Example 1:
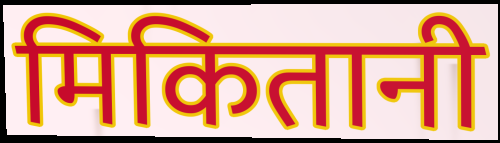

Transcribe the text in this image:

मिकितानी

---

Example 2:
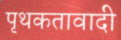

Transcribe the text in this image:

पृथकतावादी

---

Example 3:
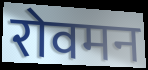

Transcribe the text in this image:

रोवमन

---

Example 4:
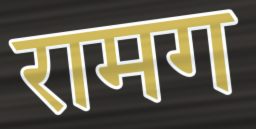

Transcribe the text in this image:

रामग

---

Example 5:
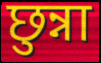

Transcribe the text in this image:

छुन्ना